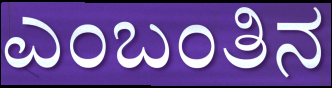
ಎಂಬಂತಿನ